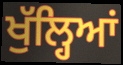
ਖੁੱਲ੍ਹਿਆਂ